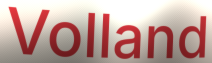
Volland